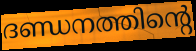
ദണ്ഡനത്തിന്റെ